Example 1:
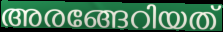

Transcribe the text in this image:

അരങ്ങേറിയത്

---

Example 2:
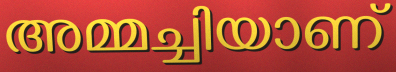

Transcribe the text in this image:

അമ്മച്ചിയാണ്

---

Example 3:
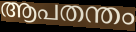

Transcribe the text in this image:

ആപതന്തം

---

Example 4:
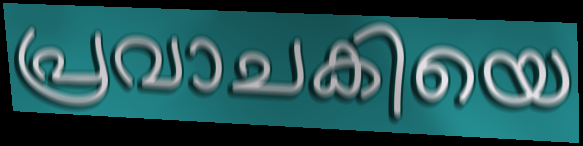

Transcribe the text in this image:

പ്രവാചകിയെ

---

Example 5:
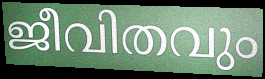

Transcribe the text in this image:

ജീവിതവും